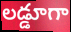
లడ్డూగా